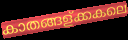
കാതങ്ങള്ക്കകലെ